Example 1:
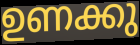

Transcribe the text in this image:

ഉണക്കു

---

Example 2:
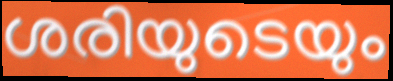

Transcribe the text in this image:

ശരിയുടെയും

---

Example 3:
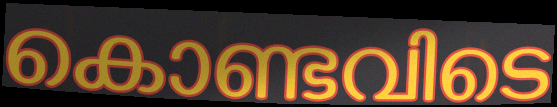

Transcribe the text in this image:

കൊണ്ടവിടെ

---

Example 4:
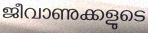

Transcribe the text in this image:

ജീവാണുക്കളുടെ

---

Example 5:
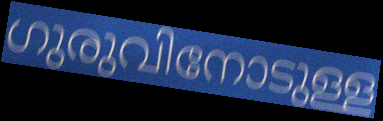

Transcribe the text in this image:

ഗുരുവിനോടുള്ള